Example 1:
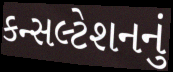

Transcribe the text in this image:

કન્સલ્ટેશનનું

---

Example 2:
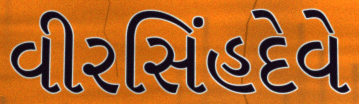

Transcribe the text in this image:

વીરસિંહદેવે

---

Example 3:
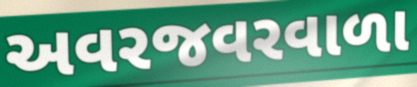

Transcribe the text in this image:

અવરજવરવાળા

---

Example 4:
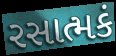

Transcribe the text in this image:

રસાત્મકં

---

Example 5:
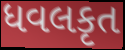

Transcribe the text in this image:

ધવલકૃત